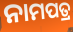
ନାମପତ୍ର